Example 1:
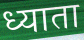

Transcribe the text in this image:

ध्याता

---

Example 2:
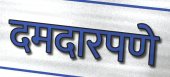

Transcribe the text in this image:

दमदारपणे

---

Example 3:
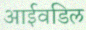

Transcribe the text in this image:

आईवडिल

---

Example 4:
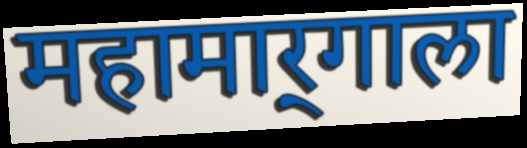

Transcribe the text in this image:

महामार्गाला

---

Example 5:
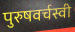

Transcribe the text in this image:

पुरुषवर्चस्वी